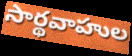
సార్థవాహుల